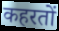
कहरतों